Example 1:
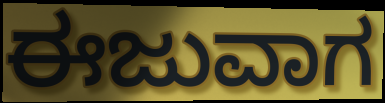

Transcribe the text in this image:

ಈಜುವಾಗ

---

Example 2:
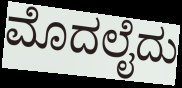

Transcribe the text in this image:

ಮೊದಲೈದು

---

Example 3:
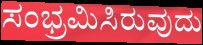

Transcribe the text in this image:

ಸಂಭ್ರಮಿಸಿರುವುದು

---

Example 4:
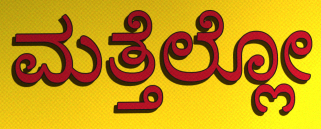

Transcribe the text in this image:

ಮತ್ತೆಲ್ಲೋ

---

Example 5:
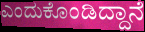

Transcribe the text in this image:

ಎಂದುಕೊಂಡಿದ್ದಾನೆ